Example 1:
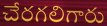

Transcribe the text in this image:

చేరగలిగారు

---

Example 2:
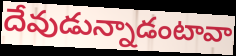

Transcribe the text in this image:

దేవుడున్నాడంటావా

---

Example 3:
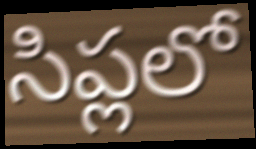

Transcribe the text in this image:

సిప్లలో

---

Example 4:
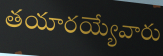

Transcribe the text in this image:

తయారయ్యేవారు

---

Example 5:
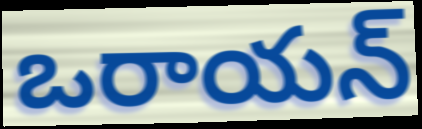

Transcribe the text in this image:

ఒరాయన్